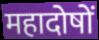
महादोषों